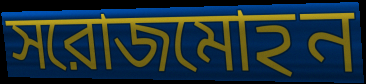
সরোজমোহন